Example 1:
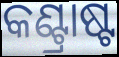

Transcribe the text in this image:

କଣ୍ଟ୍ରାଷ୍ଟ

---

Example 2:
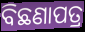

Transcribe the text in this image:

ବିଛଣାପତ୍ର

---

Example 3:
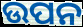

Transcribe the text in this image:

ଉପନ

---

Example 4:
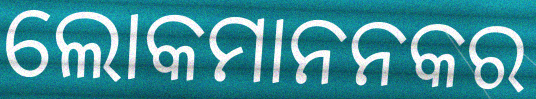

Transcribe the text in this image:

ଲୋକମାନନକର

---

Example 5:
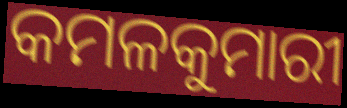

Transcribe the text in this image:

କମଳକୁମାରୀ